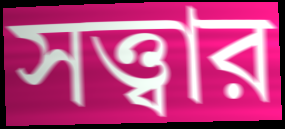
সত্ত্বার